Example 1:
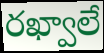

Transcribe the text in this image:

రఖ్వాలే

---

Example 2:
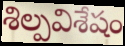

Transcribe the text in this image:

శిల్పవిశేషం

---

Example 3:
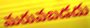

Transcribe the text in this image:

మరువబడదు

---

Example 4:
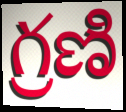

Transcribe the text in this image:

గ్రణి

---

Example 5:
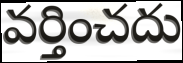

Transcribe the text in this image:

వర్తించదు